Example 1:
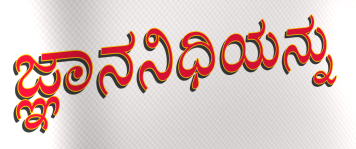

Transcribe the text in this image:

ಜ್ಞಾನನಿಧಿಯನ್ನು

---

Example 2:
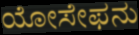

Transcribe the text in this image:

ಯೋಸೇಫನು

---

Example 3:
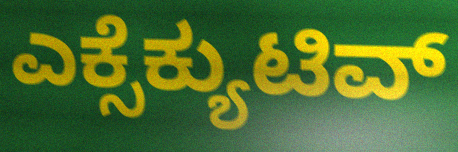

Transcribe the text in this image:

ಎಕ್ಸೆಕ್ಯುಟಿವ್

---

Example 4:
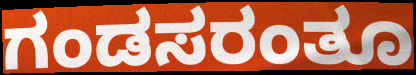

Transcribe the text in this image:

ಗಂಡಸರಂತೂ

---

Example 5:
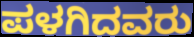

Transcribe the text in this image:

ಪಳಗಿದವರು